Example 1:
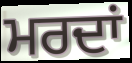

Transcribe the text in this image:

ਮਰਦਾਂ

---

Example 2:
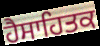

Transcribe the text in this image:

ਹੈਸਾਹਿਤਕ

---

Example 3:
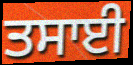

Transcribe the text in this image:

ਤਸਾਈ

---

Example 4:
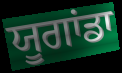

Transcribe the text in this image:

ਯੂਗਾਂਡਾ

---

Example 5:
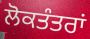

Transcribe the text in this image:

ਲੋਕਤੰਤਰਾਂ